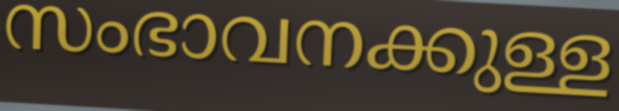
സംഭാവനക്കുള്ള